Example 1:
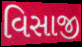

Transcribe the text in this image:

વિસાજી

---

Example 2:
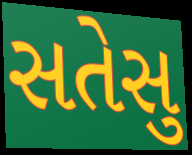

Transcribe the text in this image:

સતેસુ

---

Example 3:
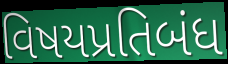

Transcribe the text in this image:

વિષયપ્રતિબંધ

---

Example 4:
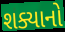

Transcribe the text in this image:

શક્યાનો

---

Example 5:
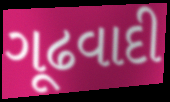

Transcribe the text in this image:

ગૂઢવાદી